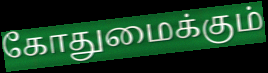
கோதுமைக்கும்